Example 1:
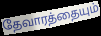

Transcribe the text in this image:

தேவாரத்தையும்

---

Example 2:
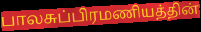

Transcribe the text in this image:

பாலசுப்பிரமணியத்தின்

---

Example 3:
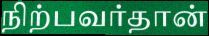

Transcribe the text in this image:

நிற்பவர்தான்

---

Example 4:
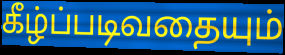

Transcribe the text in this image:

கீழ்ப்படிவதையும்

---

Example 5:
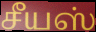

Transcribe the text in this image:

சீயஸ்